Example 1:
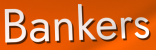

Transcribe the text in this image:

Bankers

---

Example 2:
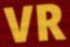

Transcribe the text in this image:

VR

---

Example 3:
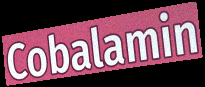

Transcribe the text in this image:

Cobalamin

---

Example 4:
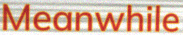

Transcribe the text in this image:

Meanwhile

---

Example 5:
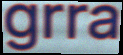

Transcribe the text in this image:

grra